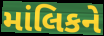
માંલિકને